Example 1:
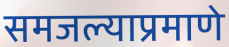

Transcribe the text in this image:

समजल्याप्रमाणे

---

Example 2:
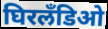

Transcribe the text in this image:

घिरलँडिओ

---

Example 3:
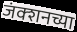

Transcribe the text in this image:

जंक्शनच्या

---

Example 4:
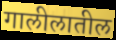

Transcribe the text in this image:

गालीलातील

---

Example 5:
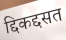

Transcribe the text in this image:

द्दिकद्दसत